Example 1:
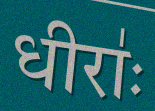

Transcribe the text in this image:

धीराः॑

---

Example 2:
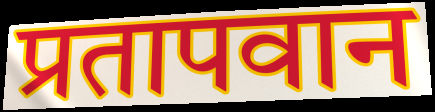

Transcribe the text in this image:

प्रतापवान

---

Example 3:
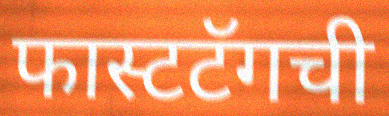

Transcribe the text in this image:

फास्टटॅगची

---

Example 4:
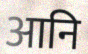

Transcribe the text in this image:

आनि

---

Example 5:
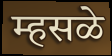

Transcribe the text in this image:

म्हसळे